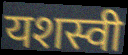
यशस्‍वी